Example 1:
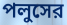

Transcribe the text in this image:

পলুসের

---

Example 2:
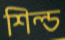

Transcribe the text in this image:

শিল্ড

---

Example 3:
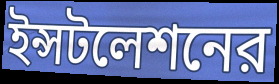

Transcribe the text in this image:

ইন্সটলেশনের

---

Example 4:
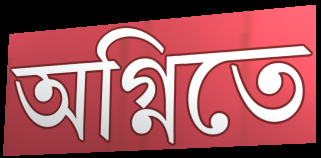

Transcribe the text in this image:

অগ্নিতে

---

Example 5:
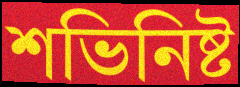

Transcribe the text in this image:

শভিনিষ্ট